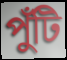
পুঁটি